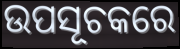
ଉପସୂଚକରେ